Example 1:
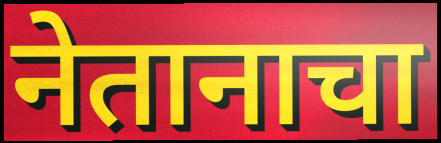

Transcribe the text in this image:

नेतानाचा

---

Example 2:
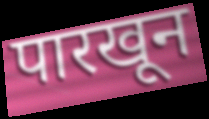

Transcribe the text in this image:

पारखून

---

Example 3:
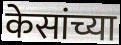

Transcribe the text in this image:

केसांच्या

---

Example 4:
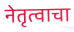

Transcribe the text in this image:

नेतृत्वाचा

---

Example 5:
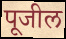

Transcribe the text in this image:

पूजील